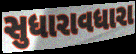
સુધારાવધારા